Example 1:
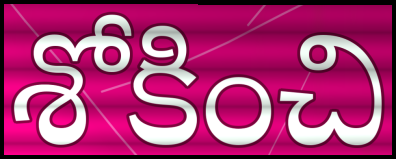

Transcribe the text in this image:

శోకించి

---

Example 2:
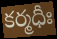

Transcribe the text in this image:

కర్మధీః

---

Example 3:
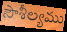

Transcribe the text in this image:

సౌశీల్యము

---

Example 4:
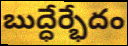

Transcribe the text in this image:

బుద్ధేర్భేదం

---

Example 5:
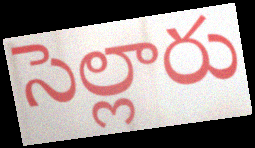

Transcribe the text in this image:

సెల్లారు